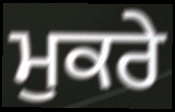
ਮੁਕਰੇ